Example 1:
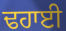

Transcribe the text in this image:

ਢਹਾਈ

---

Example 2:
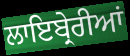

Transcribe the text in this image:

ਲਾਇਬ੍ਰੇਰੀਆਂ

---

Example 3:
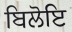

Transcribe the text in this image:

ਬਿਲੋਇ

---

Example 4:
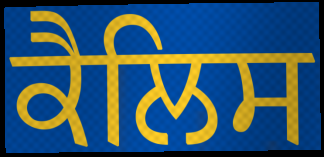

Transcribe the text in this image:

ਕੈਲਿਸ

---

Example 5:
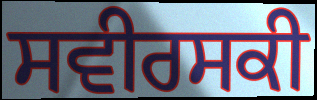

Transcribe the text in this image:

ਸਵੀਰਸਕੀ